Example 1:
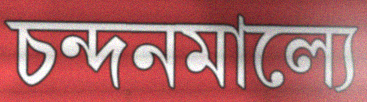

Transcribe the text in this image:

চন্দনমাল্যে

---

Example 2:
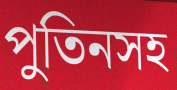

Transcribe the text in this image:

পুতিনসহ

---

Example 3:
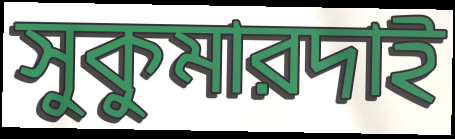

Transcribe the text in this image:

সুকুমারদাই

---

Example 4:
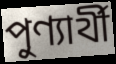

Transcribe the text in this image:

পুণ্যার্থী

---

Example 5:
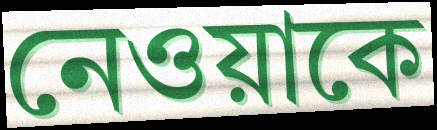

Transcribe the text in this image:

নেওয়াকে